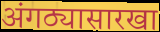
अंगठ्यासारखा